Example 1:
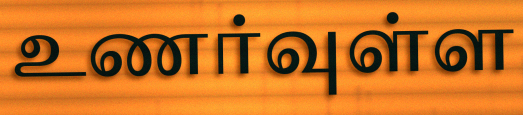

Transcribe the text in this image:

உணர்வுள்ள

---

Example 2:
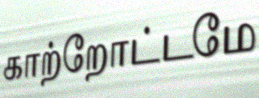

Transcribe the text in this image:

காற்றோட்டமே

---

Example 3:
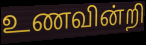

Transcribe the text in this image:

உணவின்றி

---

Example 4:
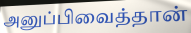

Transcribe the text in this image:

அனுப்பிவைத்தான்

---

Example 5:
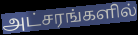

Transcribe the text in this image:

அட்சரங்களில்